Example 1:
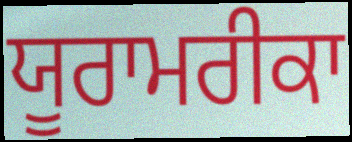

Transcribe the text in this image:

ਯੂਰਾਮਰੀਕਾ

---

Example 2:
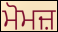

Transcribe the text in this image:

ਮੋਮਜ਼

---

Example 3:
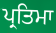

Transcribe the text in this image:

ਪ੍ਰਤਿਮਾ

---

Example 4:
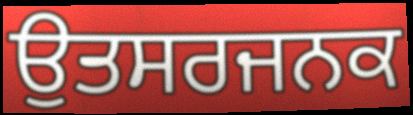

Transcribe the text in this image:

ਉਤਸਰਜਨਕ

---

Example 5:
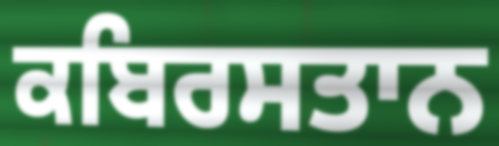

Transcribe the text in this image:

ਕਬਿਰਸਤਾਨ